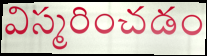
విస్మరించడం